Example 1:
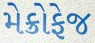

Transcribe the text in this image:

મેક્રોફેજ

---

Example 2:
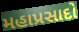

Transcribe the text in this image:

મહાપ્રસાદો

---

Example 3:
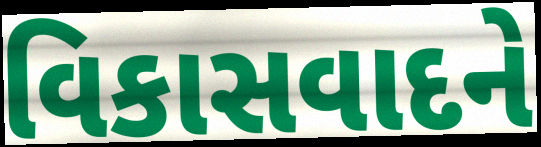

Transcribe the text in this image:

વિકાસવાદને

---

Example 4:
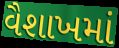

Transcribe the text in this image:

વૈશાખમાં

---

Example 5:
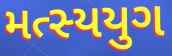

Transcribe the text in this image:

મત્સ્યયુગ